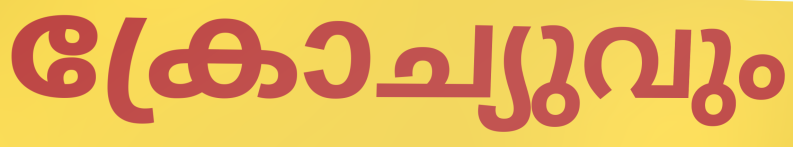
ക്രോച്യുവും